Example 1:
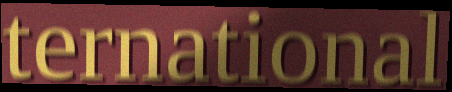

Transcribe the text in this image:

ternational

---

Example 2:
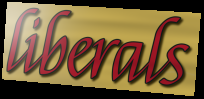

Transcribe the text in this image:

liberals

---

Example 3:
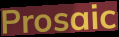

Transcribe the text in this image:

Prosaic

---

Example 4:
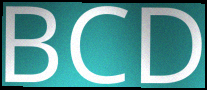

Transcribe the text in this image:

BCD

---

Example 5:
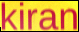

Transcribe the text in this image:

kiran